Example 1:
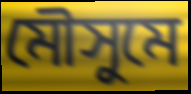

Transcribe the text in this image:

মৌসুমে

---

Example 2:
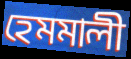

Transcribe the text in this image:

হেমমালী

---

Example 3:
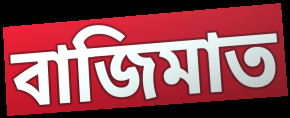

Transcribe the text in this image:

বাজিমাত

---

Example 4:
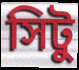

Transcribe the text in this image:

সিটু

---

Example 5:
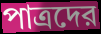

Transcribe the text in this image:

পাত্রদের